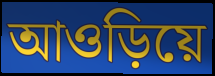
আওড়িয়ে